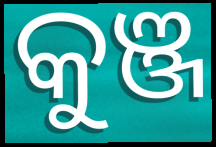
କୁଞ୍ଜ